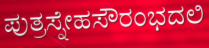
ಪುತ್ರಸ್ನೇಹಸೌರಂಭದಲಿ